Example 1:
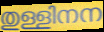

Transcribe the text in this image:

തുള്ളിനന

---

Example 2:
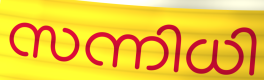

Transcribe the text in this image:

സന്നിധി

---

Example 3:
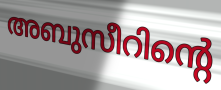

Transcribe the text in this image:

അബുസീറിന്റെ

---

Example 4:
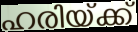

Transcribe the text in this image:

ഹരിയ്‌ക്ക്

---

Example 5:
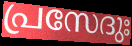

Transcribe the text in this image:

പ്രസേദുഃ